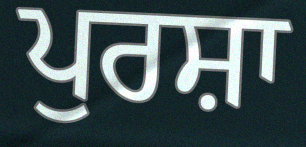
ਪੁਰਸ਼ਾ